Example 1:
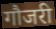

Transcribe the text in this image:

गौजरी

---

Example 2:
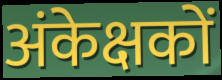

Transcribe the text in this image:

अंकेक्षकों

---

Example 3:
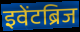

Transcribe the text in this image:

इवेंटब्रिज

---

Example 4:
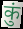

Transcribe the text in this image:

कुं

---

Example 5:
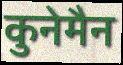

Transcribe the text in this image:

कुनेमैन